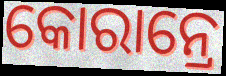
କୋରାନ୍ରେ